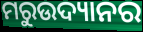
ମରୁଉଦ୍ୟାନର